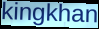
kingkhan